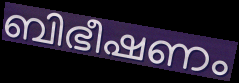
ബിഭീഷണം